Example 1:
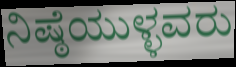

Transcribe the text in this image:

ನಿಷ್ಠೆಯುಳ್ಳವರು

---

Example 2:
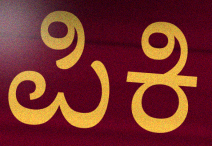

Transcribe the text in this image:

ಪಿಕಿ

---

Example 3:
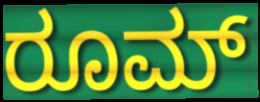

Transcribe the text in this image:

ರೂಮ್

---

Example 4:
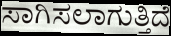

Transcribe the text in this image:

ಸಾಗಿಸಲಾಗುತ್ತಿದೆ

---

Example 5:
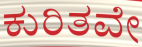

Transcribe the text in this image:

ಕುರಿತವೇ